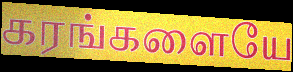
கரங்களையே